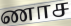
ணாச